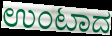
ಉಂಟಾದ